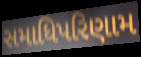
સમાધિપરિણામ